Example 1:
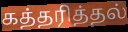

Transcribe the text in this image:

கத்தரித்தல்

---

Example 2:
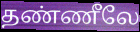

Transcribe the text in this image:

தண்ணீலே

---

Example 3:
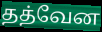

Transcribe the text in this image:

தத்வேன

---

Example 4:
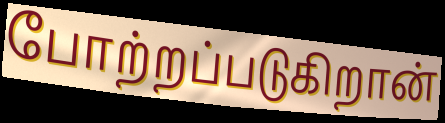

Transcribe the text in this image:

போற்றப்படுகிறான்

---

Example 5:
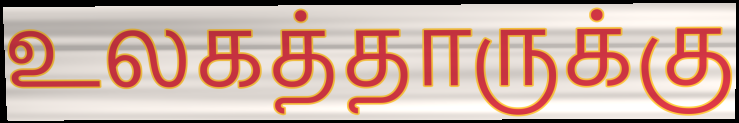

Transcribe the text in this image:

உலகத்தாருக்கு